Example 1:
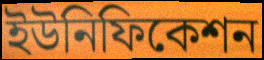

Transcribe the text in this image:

ইউনিফিকেশন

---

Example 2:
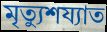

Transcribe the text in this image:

মৃত্যুশয্যাত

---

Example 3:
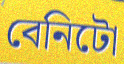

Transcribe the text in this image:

বেনিটো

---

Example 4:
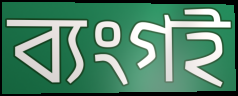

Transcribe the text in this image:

ব্যংগই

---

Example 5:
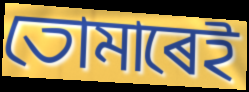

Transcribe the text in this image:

তোমাৰেই